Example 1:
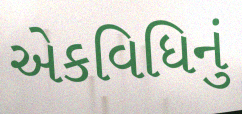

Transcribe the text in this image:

એકવિધિનું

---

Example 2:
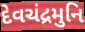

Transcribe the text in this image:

દેવચંદ્રમુનિ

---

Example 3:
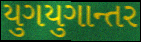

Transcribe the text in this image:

યુગયુગાન્તર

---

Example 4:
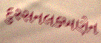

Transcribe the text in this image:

દુસ્સનલક્ખણેન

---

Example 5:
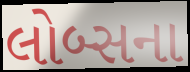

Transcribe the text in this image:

લોબ્સના